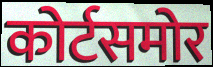
कोर्टसमोर